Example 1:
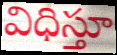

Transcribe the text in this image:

విధిస్తూ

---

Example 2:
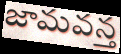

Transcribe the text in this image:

జామవన్త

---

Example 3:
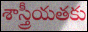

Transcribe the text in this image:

శాస్త్రీయతకు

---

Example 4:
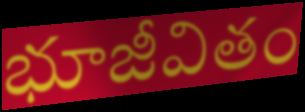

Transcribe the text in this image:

భూజీవితం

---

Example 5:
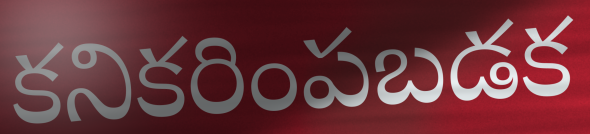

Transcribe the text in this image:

కనికరింపబడక